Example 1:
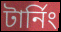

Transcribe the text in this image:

টার্নিং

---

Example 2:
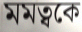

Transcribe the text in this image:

মমত্বকে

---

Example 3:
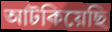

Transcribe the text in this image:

আটকিয়েছি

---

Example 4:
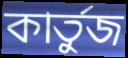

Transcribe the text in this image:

কার্তুজ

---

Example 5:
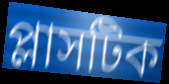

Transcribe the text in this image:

প্লাসটিক